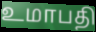
உமாபதி